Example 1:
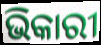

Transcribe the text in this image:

ଭିକାରୀ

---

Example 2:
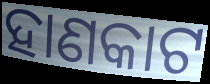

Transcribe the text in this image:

ହାଣକାଟ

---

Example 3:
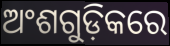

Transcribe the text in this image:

ଅଂଶଗୁଡ଼ିକରେ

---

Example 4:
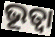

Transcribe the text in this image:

ଭୂତ୍ୱା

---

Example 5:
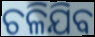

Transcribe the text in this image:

ଚଳିଯିବ